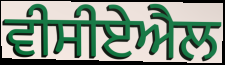
ਵੀਸੀਏਐਲ